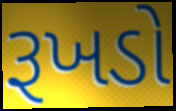
રૂખડો